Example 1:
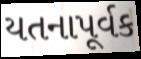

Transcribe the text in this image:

યતનાપૂર્વક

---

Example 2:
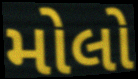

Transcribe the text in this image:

મોલો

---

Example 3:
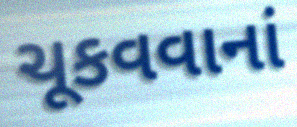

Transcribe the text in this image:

ચૂકવવાનાં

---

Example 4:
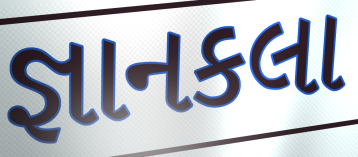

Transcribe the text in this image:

જ્ઞાનકલા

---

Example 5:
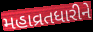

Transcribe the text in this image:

મહાવ્રતધારીને